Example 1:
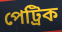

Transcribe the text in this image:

পেট্ৰিক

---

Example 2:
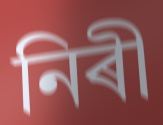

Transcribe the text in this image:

নিৰী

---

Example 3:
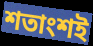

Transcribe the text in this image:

শতাংশই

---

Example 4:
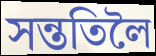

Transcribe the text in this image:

সন্ততিলৈ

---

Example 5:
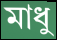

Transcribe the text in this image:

মাধু